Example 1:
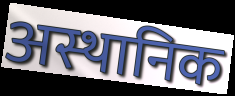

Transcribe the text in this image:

अस्थानिक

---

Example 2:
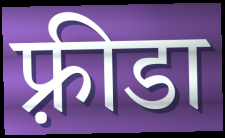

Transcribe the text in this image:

फ़्रीडा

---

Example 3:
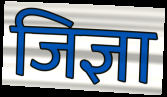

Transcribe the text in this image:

जिज्ञा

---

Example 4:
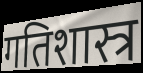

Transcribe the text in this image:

गतिशास्त्र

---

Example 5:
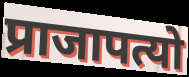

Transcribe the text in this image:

प्राजापत्यो